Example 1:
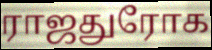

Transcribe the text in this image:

ராஜதுரோக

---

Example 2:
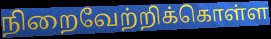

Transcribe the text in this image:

நிறைவேற்றிக்கொள்ள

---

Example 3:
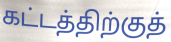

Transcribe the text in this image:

கட்டத்திற்குத்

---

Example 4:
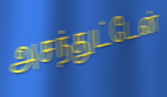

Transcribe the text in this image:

அசந்துட்டேன்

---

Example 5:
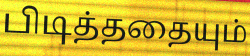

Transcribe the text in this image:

பிடித்ததையும்